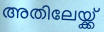
അതിലേയ്ക്ക്